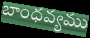
బాంధవ్యము